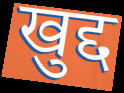
खुद्द